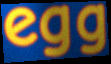
egg